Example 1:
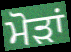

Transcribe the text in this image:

ਮੋੜਾਂ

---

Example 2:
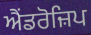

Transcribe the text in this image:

ਐਂਡਰੋਜ਼ਿਪ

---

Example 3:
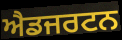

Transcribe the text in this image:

ਐਡਜਰਟਨ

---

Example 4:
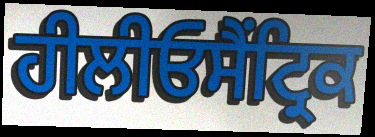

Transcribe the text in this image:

ਹੀਲੀਓਸੈਂਟ੍ਰਿਕ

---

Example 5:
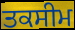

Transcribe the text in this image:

ਤਕਸੀਮ